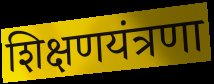
शिक्षणयंत्रणा